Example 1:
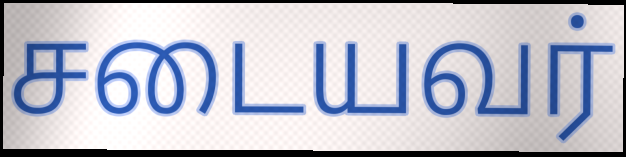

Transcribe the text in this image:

சடையவர்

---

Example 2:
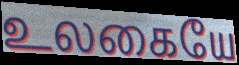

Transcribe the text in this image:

உலகையே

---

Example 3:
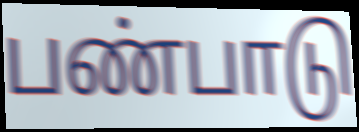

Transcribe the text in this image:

பண்பாடு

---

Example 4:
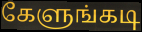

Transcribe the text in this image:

கேளுங்கடி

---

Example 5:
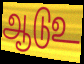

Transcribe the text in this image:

ஆடுஉ